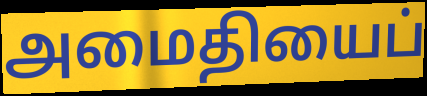
அமைதியைப்